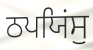
ਠਪਯਿਂਸੁ